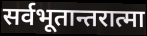
सर्वभूतान्तरात्मा